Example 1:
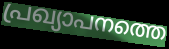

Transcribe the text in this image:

പ്രഖ്യാപനത്തെ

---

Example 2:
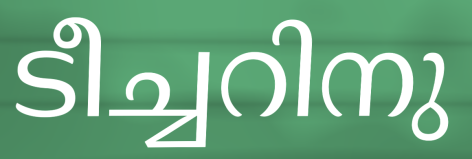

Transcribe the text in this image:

ടീച്ചറിനു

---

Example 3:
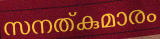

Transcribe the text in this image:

സനത്കുമാരം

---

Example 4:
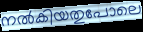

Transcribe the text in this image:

നൽകിയതുപോലെ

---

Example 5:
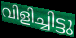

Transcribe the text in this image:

വിളിച്ചിട്ടു